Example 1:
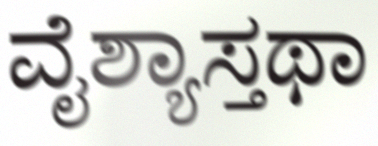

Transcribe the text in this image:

ವೈಶ್ಯಾಸ್ತಥಾ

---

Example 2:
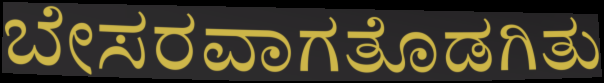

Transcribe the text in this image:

ಬೇಸರವಾಗತೊಡಗಿತು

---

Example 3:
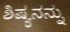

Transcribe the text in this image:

ಶಿಷ್ಯನನ್ನು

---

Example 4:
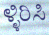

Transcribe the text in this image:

ಳ್ಳಿರಿಸಿ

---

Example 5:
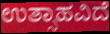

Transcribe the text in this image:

ಉತ್ಸಾಹವಿದೆ